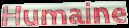
Humaine